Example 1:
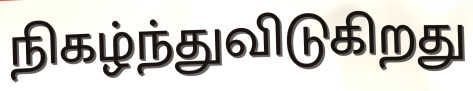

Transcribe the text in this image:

நிகழ்ந்துவிடுகிறது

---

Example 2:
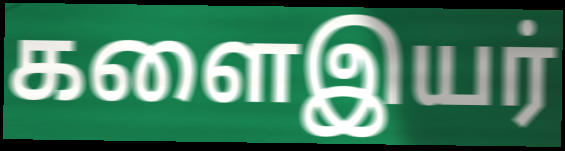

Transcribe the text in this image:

களைஇயர்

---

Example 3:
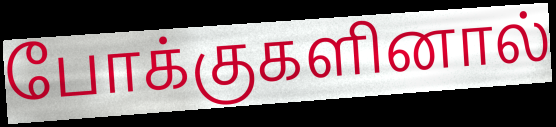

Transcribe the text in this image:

போக்குகளினால்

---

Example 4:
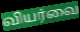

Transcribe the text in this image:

வியர்வை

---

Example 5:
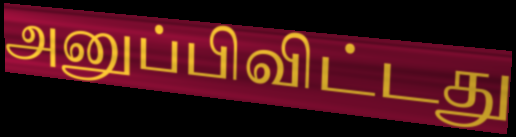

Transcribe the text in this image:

அனுப்பிவிட்டது